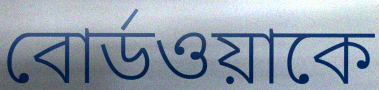
বোর্ডওয়াকে